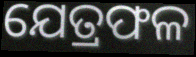
ଯେତ୍ରଫଳ